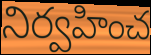
నిర్వహించ